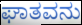
ಘಾತವನು